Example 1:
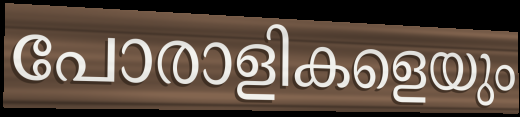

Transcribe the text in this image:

പോരാളികളെയും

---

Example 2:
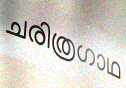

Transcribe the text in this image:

ചരിത്രഗാഥ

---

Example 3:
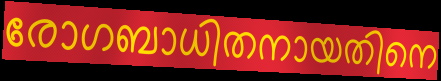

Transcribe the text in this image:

രോഗബാധിതനായതിനെ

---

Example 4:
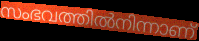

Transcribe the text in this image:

സംഭവത്തിൽനിന്നാണ്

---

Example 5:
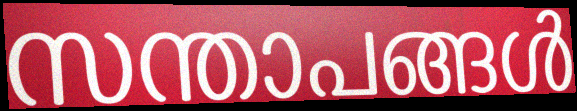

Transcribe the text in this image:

സന്താപങ്ങൾ